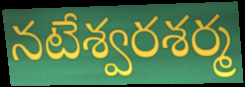
నటేశ్వరశర్మ